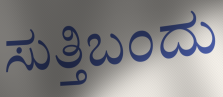
ಸುತ್ತಿಬಂದು